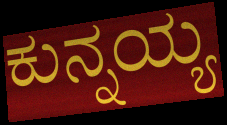
ಕುನ್ನಯ್ಯ